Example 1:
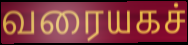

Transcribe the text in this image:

வரையகச்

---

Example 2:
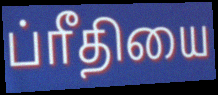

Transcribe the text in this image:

ப்ரீதியை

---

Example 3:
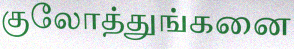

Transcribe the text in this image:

குலோத்துங்கனை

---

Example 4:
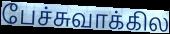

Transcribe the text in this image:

பேச்சுவாக்கில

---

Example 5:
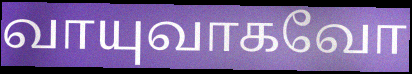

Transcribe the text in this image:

வாயுவாகவோ